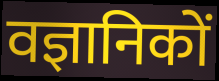
वज्ञानिकों